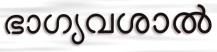
ഭാഗ്യവശാൽ